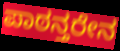
ಪಾಠನ್ತರೇನ